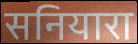
सनियारा